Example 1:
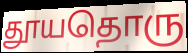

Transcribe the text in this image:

தூயதொரு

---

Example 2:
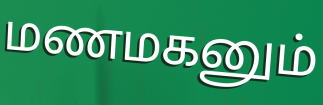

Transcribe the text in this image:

மணமகனும்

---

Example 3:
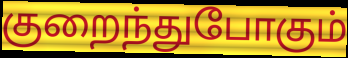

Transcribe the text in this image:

குறைந்துபோகும்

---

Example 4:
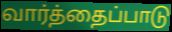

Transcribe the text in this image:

வார்த்தைப்பாடு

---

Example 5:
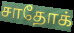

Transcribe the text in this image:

சாதோக்